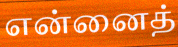
என்னைத்